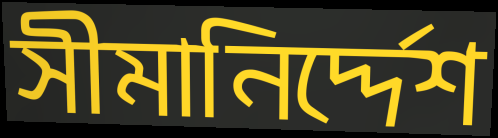
সীমানির্দ্দেশ